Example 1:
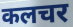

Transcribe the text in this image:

कलचर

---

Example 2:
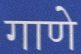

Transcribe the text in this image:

गाणे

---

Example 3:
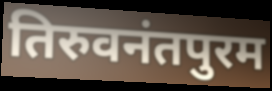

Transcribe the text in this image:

तिरुवनंतपुरम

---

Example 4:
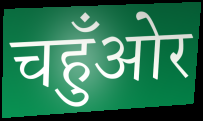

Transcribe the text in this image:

चहुँओर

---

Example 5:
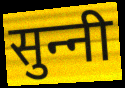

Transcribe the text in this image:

सुन्नी